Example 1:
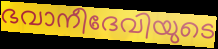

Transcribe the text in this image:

ഭവാനീദേവിയുടെ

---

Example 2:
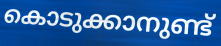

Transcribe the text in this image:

കൊടുക്കാനുണ്ട്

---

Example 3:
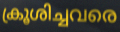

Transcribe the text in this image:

ക്രൂശിച്ചവരെ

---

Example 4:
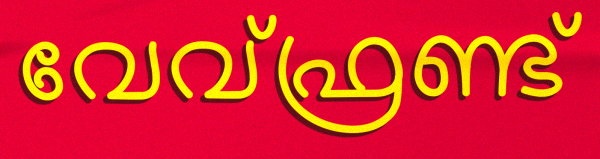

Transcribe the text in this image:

വേവ്ഫ്രണ്ട്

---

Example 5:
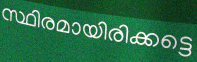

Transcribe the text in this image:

സ്ഥിരമായിരിക്കട്ടെ